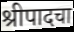
श्रीपादचा